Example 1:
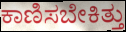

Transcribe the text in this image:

ಕಾಣಿಸಬೇಕಿತ್ತು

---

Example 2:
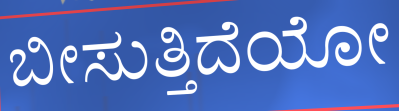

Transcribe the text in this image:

ಬೀಸುತ್ತಿದೆಯೋ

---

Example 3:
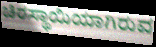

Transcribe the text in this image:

ಚಿರಸ್ಥಾಯಿಯಾಗಿರುವ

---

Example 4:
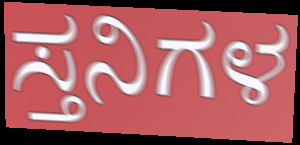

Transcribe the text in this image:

ಸ್ತನಿಗಳ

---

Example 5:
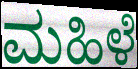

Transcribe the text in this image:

ಮಹಿಳೆ